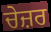
ਚੇਜ਼ਰ